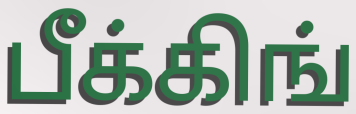
பீக்கிங்